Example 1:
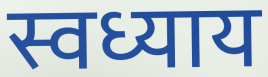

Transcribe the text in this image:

स्वध्याय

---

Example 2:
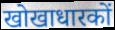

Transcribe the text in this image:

खोखाधारकों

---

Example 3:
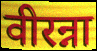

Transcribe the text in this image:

वीरन्ना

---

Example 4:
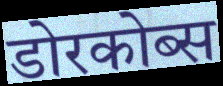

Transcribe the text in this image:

डोरकोब्स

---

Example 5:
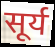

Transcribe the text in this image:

सूर्य